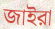
জাইরা